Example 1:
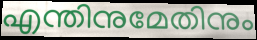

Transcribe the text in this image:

എന്തിനുമേതിനും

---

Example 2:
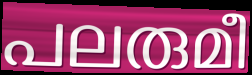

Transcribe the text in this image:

പലരുമീ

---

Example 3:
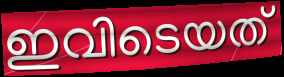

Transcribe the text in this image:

ഇവിടെയത്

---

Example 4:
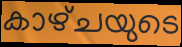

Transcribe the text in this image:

കാഴ്‌ചയുടെ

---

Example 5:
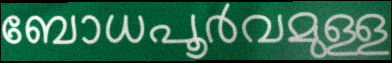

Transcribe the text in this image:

ബോധപൂർവമുള്ള